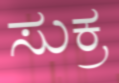
ಸುಕ್ರ